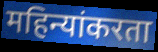
महिन्यांकरता